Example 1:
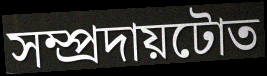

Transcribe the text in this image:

সম্প্ৰদায়টোত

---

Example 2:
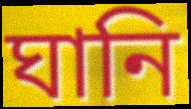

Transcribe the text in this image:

ঘানি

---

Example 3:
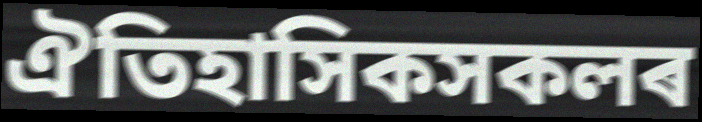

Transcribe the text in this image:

ঐতিহাসিকসকলৰ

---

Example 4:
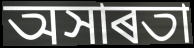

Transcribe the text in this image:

অসাৰতা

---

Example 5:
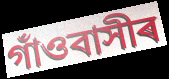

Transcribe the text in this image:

গাঁওবাসীৰ